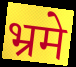
भ्रमे